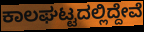
ಕಾಲಘಟ್ಟದಲ್ಲಿದ್ದೇವೆ